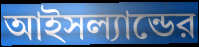
আইসল্যান্ডের